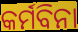
କର୍ମବିନା